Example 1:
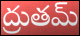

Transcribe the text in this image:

ద్రుతమ్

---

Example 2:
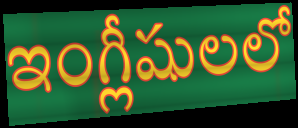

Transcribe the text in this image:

ఇంగ్లీషులలో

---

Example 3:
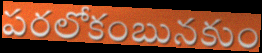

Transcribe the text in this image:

పరలోకంబునకుం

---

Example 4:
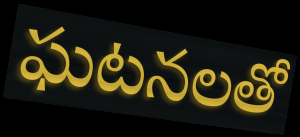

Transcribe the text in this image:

ఘటనలతో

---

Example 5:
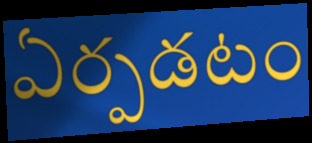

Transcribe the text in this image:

ఏర్పడటం